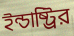
ইন্ডাষ্ট্রির